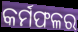
କର୍ମଫଳର